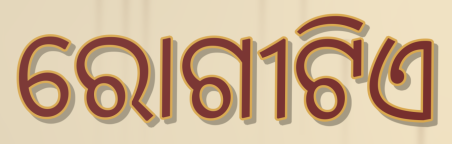
ରୋଗୀଟିଏ